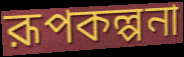
রূপকল্পনা